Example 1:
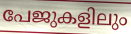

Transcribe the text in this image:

പേജുകളിലും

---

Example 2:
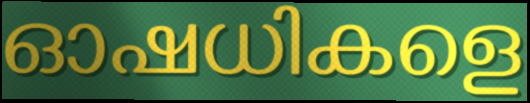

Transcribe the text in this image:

ഓഷധികളെ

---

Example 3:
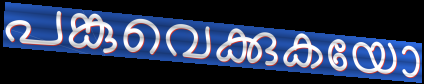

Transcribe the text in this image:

പങ്കുവെക്കുകയോ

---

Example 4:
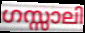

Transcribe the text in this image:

ഗസ്സാലി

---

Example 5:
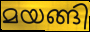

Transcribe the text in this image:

മയങ്ങി